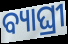
ବ୍ୟାଘ୍ରୀ